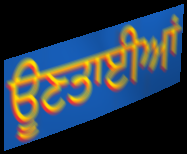
ਊਣਤਾਈਆਂ